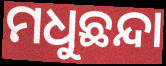
ମଧୁଛନ୍ଦା